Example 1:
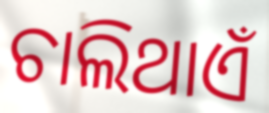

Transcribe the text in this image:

ଚାଲିଥାଏଁ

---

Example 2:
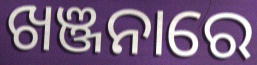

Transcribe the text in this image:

ଖଞ୍ଜନାରେ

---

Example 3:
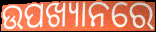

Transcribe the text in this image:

ଉପଖ୍ୟାନରେ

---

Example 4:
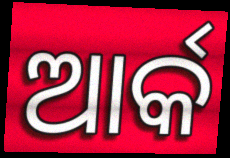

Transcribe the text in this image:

ଆର୍କ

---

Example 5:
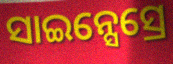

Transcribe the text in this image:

ସାଇନ୍ସେସ୍ରେ